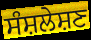
ਸੰਸ਼ਲੇਸ਼ਣ